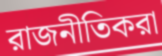
রাজনীতিকরা